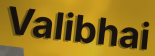
Valibhai